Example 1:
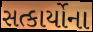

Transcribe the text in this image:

સત્કાર્યોના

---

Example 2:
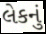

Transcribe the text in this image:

લેકનું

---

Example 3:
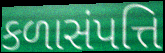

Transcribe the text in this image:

કળાસંપત્તિ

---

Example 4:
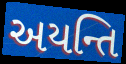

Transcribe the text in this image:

અયન્તિ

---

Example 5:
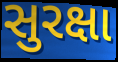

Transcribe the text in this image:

સુરક્ષા